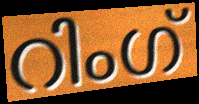
റിംഗ്